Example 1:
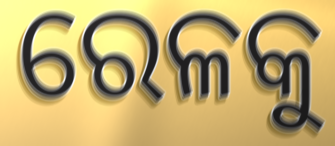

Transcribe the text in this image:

ରେଳକୁ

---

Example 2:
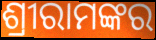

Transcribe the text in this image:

ଶ୍ରୀରାମଙ୍କର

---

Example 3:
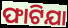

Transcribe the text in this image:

ଫାଟିଯା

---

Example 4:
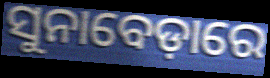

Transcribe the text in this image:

ସୁନାବେଡ଼ାରେ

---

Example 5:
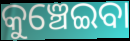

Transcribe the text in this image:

କୁଞ୍ଚେଇବା